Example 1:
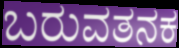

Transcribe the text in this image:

ಬರುವತನಕ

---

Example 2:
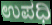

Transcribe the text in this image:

ಉಪಧಿ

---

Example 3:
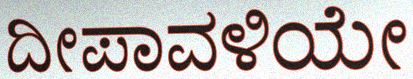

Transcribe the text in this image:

ದೀಪಾವಳಿಯೇ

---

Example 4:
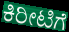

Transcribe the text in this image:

ಕಿರೀಟಿಗೆ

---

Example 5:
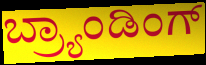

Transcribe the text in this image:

ಬ್ರ್ಯಾಂಡಿಂಗ್